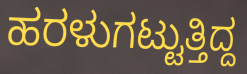
ಹರಳುಗಟ್ಟುತ್ತಿದ್ದ